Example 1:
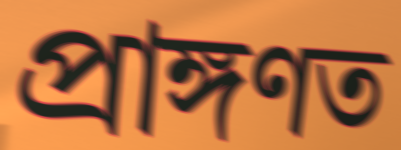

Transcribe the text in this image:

প্ৰাঙ্গণত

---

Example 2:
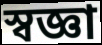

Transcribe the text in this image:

স্বজ্ঞা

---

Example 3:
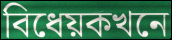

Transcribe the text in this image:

বিধেয়কখনে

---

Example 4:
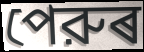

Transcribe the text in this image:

পেৰুৰ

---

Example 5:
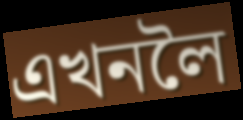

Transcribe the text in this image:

এখনলৈ